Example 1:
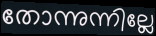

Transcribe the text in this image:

തോന്നുന്നില്ലേ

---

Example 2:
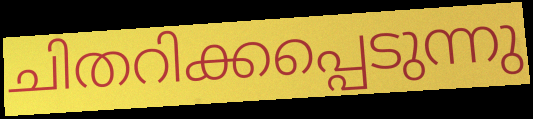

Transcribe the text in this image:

ചിതറിക്കപ്പെടുന്നു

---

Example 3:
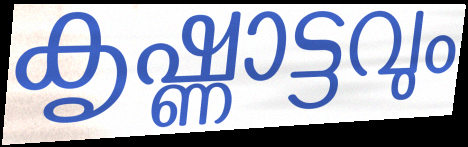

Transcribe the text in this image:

കൃഷ്ണാട്ടവും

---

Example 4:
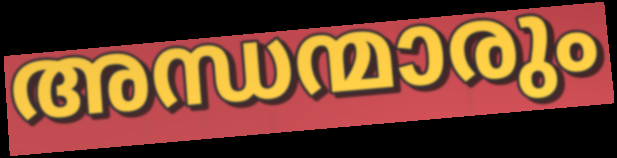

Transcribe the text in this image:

അന്ധന്മാരും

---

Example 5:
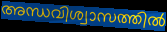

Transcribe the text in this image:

അന്ധവിശ്വാസത്തിൽ